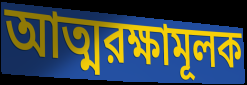
আত্মরক্ষামূলক